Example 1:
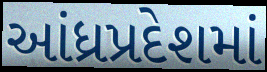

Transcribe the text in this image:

આંધ્રપ્રદેશમાં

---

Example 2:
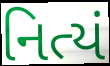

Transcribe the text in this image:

નિત્યં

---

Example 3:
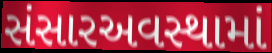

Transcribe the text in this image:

સંસારઅવસ્થામાં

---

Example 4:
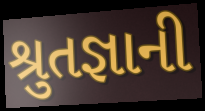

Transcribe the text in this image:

શ્રુતજ્ઞાની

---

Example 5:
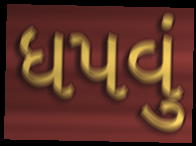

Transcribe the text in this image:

ધપવું